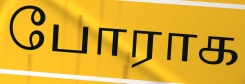
போராக